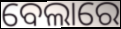
ବେଲାରେ